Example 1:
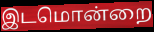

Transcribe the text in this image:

இடமொன்றை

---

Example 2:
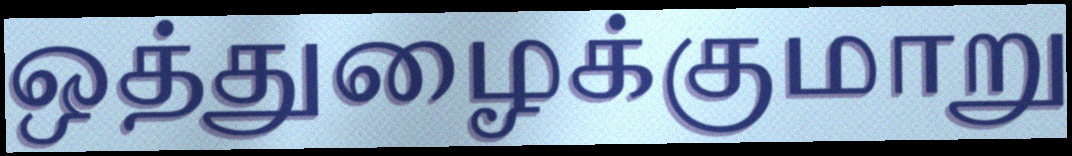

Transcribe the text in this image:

ஒத்துழைக்குமாறு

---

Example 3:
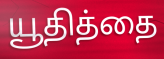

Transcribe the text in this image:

யூதித்தை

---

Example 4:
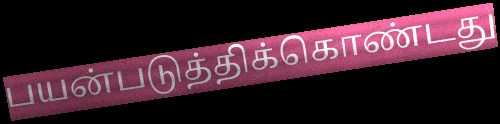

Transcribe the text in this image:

பயன்படுத்திக்கொண்டது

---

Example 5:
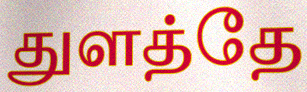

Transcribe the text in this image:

துளத்தே